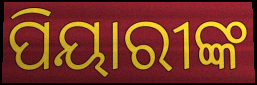
ପିୟାରୀଙ୍କ